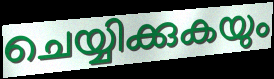
ചെയ്യിക്കുകയും